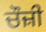
ਚੌਜ਼ੀ